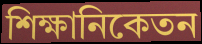
শিক্ষানিকেতন